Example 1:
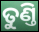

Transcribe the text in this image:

ତୁଣ୍ତି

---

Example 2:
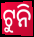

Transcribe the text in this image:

ଟୁନି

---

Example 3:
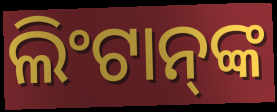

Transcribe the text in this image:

ଲିଂଟାନ୍‍ଙ୍କ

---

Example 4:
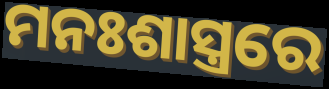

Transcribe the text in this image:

ମନଃଶାସ୍ତ୍ରରେ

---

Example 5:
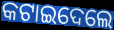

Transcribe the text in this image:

କଟାଇଦେଲେ